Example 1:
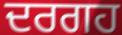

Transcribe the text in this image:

ਦਰਗਹ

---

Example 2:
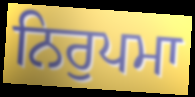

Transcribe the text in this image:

ਨਿਰੁਪਮਾ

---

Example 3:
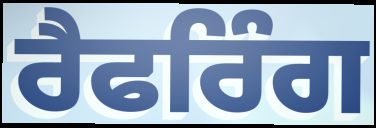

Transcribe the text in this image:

ਰੈਫਰਿੰਗ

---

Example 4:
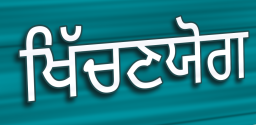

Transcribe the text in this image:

ਖਿੱਚਣਯੋਗ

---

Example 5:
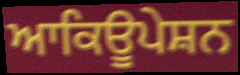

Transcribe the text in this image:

ਆਕਿਊਪੇਸ਼ਨ